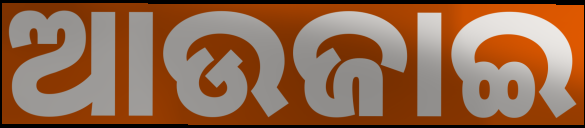
ଆଉଜାଇ